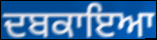
ਦਬਕਾਇਆ